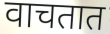
वाचतात